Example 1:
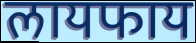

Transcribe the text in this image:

लायफाय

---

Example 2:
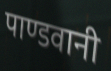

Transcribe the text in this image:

पाण्डवानी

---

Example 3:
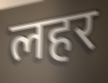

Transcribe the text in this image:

लहर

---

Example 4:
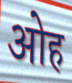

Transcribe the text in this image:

ओह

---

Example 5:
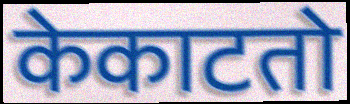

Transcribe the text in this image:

केकाटतो